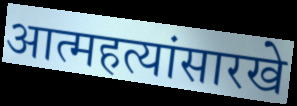
आत्महत्यांसारखे